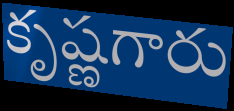
కృష్ణగారు